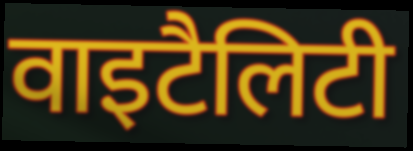
वाइटैलिटी